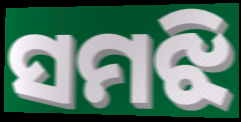
ସମଝି